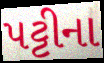
પટ્ટીના